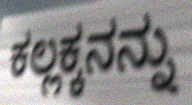
ಕಲ್ಲಕ್ಕನನ್ನು